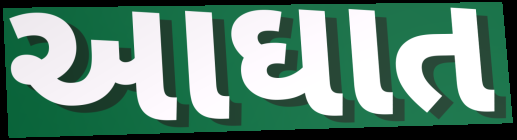
આઘાત